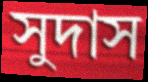
সুদাস